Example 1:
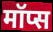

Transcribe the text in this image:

मॉप्स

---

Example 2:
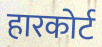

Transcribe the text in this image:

हारकोर्ट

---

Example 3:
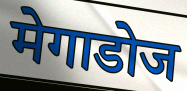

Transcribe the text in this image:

मेगाडोज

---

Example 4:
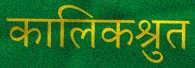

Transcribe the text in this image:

कालिकश्रुत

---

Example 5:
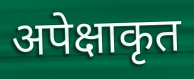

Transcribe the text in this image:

अपेक्षाकृत